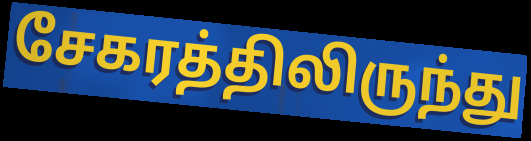
சேகரத்திலிருந்து